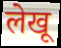
लेखू